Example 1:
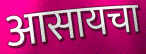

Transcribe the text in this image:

आसायचा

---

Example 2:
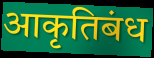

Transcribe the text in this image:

आकृतिबंध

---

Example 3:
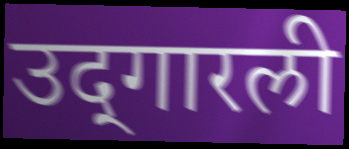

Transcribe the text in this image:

उद्‌गारली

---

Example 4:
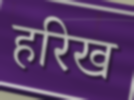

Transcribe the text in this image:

हरिख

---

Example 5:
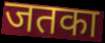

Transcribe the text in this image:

जतका